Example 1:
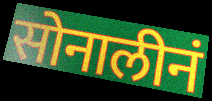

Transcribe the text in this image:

सोनालीनं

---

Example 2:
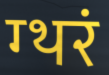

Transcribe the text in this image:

ग्थरं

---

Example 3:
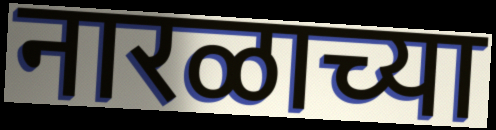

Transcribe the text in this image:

नारळाच्या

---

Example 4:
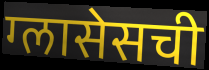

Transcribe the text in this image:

ग्लासेसची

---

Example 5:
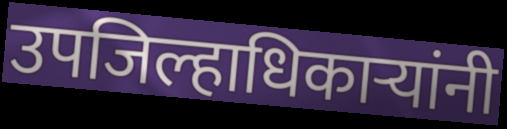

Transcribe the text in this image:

उपजिल्हाधिकाऱ्यांनी